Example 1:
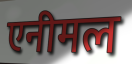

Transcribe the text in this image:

एनीमल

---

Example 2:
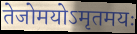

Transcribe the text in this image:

तेजोमयोऽमृतमयः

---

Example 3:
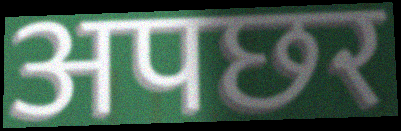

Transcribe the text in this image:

अपछर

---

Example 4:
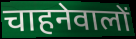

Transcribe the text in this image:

चाहनेवालों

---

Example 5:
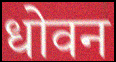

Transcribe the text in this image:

धोवन